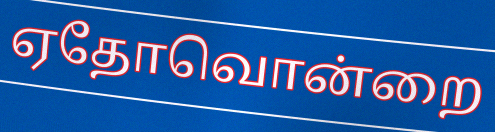
ஏதோவொன்றை